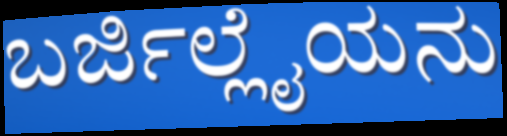
ಬರ್ಜಿಲ್ಲೈಯನು